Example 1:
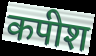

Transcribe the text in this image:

कपीश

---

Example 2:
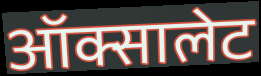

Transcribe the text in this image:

ऑक्सालेट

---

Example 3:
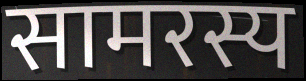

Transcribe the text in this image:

सामरस्य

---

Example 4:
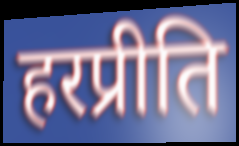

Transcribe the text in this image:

हरप्रीति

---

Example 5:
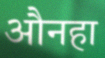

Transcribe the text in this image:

औनहा